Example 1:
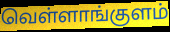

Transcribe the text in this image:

வெள்ளாங்குளம்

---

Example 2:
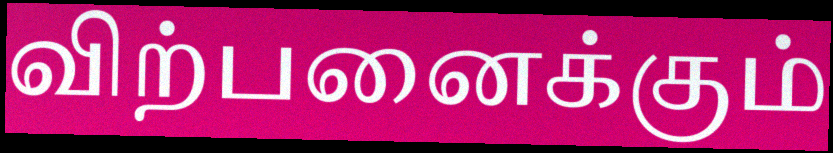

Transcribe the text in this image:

விற்பனைக்கும்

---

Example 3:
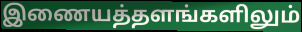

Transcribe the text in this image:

இணையத்தளங்களிலும்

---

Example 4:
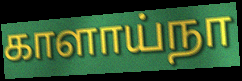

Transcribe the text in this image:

காளாய்நா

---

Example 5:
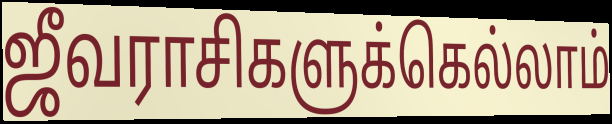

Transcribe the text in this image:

ஜீவராசிகளுக்கெல்லாம்